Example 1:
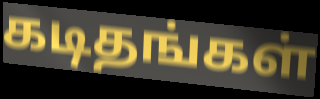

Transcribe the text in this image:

கடிதங்கள்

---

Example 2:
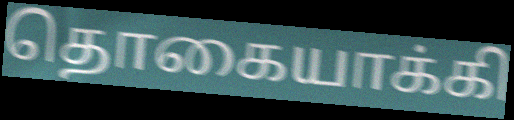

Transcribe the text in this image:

தொகையாக்கி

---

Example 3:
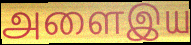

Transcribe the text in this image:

அளைஇய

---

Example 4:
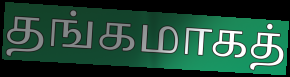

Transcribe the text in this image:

தங்கமாகத்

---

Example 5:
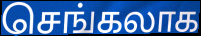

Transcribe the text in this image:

செங்கலாக